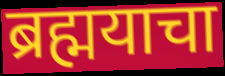
ब्रह्मयाचा